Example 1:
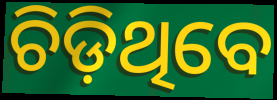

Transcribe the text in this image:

ଚିଡ଼ିଥିବେ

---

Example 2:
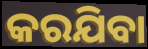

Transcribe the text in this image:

କରଯିବା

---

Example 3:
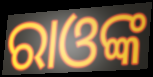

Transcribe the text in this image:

ରାଓଙ୍କ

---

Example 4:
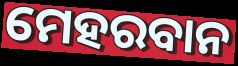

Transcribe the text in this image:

ମେହରବାନ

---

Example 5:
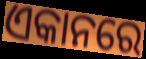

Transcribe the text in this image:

ଏକାନରେ